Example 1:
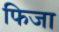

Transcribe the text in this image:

फिजा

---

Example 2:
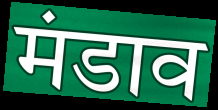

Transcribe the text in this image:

मंडाव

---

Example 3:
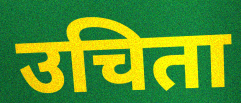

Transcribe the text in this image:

उचिता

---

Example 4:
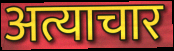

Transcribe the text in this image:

अत्याचार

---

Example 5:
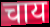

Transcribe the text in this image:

चाय